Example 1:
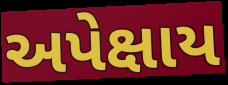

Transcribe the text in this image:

અપેક્ષાય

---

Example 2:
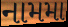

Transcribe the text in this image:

નામમા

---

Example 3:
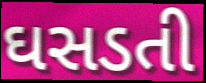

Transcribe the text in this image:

ઘસડતી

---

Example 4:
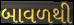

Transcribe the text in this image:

બાવળથી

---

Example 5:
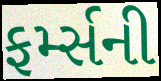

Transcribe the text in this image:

ફર્મ્સની